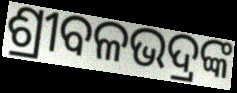
ଶ୍ରୀବଳଭଦ୍ରଙ୍କ